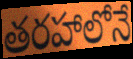
తరహాలోనే